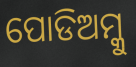
ପୋଡିଅମ୍କୁ